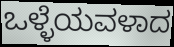
ಒಳ್ಳೆಯವಳಾದ